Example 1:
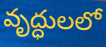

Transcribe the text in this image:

వృద్ధులలో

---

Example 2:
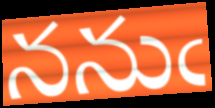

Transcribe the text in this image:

ననుఁ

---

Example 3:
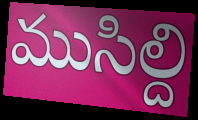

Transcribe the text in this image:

ముసిల్ది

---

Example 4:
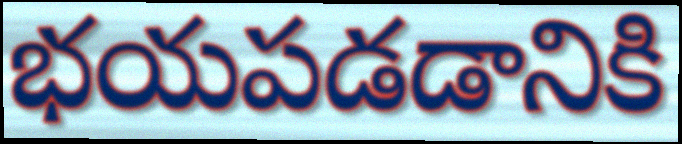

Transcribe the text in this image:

భయపడడానికి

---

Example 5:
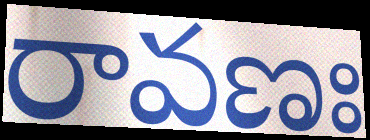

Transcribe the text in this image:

రావణః